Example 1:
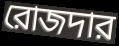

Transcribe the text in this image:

রোজদার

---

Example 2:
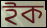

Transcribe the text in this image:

ইক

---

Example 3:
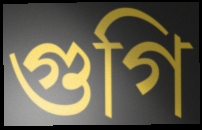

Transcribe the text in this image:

গুগি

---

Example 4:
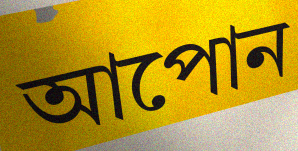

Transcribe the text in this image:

আপোন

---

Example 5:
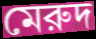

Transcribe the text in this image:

মেরুদ